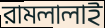
রামলালাই